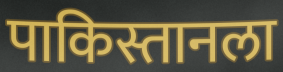
पाकिस्तानला